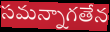
సమన్నాగతేన